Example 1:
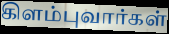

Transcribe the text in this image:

கிளம்புவார்கள்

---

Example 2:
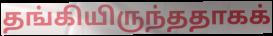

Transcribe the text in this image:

தங்கியிருந்ததாகக்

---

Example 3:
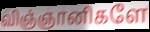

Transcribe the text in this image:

விஞ்ஞானிகளே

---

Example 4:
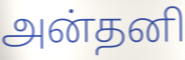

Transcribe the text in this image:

அன்தனி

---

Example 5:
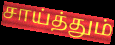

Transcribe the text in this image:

சாய்த்தும்